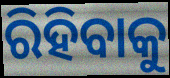
ରିହିବାକୁ